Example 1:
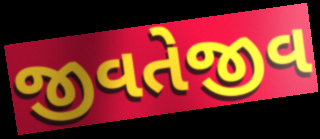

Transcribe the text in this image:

જીવતેજીવ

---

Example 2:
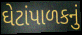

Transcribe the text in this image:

ઘેટાંપાળકનું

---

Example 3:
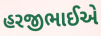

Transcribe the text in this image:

હરજીભાઈએ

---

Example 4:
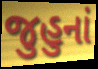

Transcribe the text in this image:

જુહુનાં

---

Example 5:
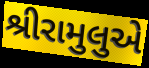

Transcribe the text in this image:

શ્રીરામુલુએ